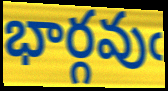
భార్గవుఁ